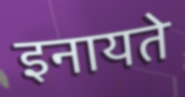
इनायते